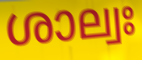
ശാല്വഃ